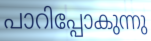
പാറിപ്പോകുന്നു